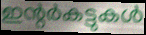
ഇന്റർകട്ടുകൾ